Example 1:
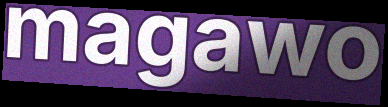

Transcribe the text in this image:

magawo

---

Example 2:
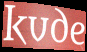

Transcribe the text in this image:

kude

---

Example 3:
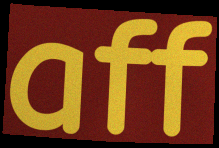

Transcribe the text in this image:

aff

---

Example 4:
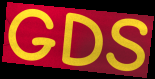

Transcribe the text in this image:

GDS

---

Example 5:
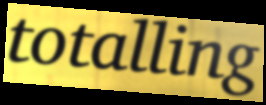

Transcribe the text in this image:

totalling